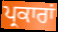
ਪ੍ਰਕਾਰਾਂ